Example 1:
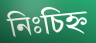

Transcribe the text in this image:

নিঃচিহ্ন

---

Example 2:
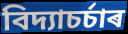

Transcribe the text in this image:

বিদ্যাচৰ্চাৰ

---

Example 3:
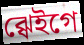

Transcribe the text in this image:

ঝ্ৱেইগে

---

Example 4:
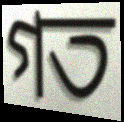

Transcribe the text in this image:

গত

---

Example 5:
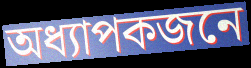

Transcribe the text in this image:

অধ্যাপকজনে